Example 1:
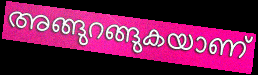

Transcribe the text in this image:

അങ്ങുറങ്ങുകയാണ്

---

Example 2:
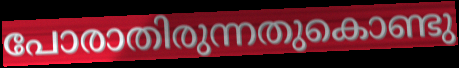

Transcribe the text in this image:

പോരാതിരുന്നതുകൊണ്ടു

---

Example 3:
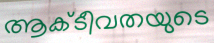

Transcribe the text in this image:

ആക്ടീവതയുടെ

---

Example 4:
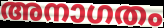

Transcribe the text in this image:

അനാഗതം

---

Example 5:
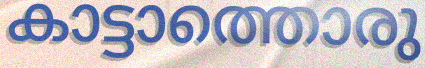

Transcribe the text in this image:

കാട്ടാത്തൊരു